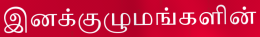
இனக்குழுமங்களின்